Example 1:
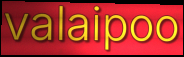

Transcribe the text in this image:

valaipoo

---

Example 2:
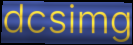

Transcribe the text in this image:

dcsimg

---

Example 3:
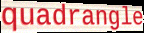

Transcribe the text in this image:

quadrangle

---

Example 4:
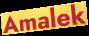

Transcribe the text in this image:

Amalek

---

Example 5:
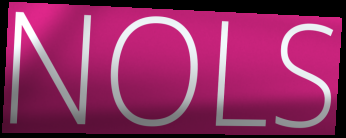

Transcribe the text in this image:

NOLS